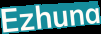
Ezhuna